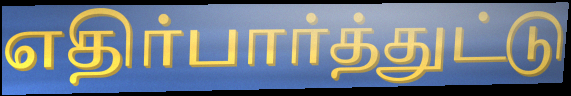
எதிர்பார்த்துட்டு